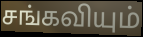
சங்கவியும்